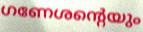
ഗണേശന്റെയും